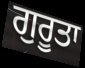
ਗੁਰੂਤਾ